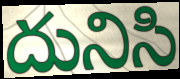
దునిసి